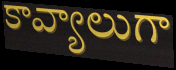
కావ్యాలుగా